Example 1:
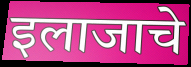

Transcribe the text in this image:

इलाजाचे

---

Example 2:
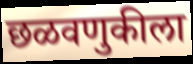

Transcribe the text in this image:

छळवणुकीला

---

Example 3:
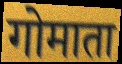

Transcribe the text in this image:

गोमाता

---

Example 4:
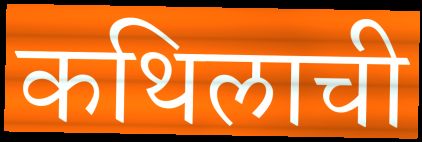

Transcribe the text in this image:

कथिलाची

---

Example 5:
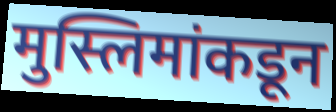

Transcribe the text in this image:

मुस्लिमांकडून